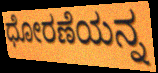
ಧೋರಣೆಯನ್ನ